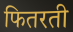
फितरती